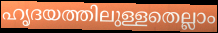
ഹൃദയത്തിലുള്ളതെല്ലാം